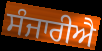
ਸੰਜਾਰੀਐ